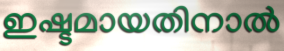
ഇഷ്ടമായതിനാൽ